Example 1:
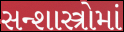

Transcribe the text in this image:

સન્શાસ્ત્રોમાં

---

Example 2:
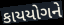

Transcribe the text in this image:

કાયયોગને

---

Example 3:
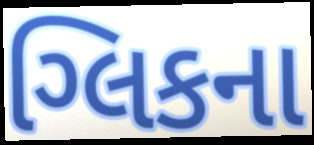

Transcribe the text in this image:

ગ્લિકના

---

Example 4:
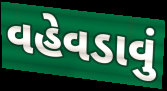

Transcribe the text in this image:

વહેવડાવું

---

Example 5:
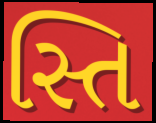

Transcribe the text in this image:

સ્તિ